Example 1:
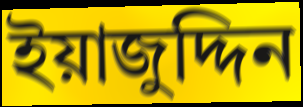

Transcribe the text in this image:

ইয়াজুদ্দিন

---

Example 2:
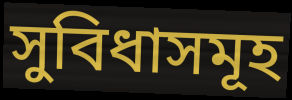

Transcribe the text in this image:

সুবিধাসমূহ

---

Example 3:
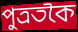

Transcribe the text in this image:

পুত্ৰতকৈ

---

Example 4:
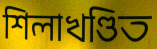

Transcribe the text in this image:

শিলাখণ্ডিত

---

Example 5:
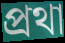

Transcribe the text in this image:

প্ৰথা